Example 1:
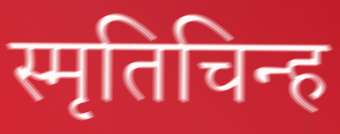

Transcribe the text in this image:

स्मृतिचिन्ह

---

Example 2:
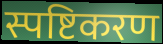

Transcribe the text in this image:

स्पष्टिकरण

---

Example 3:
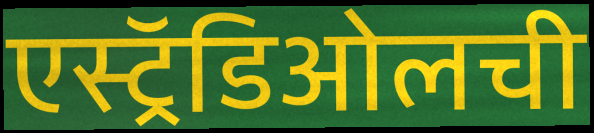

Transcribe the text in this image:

एस्ट्रॅडिओलची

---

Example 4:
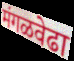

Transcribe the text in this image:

मंगळवेढा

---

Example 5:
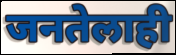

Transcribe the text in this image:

जनतेलाही